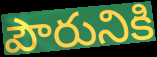
పౌరునికి